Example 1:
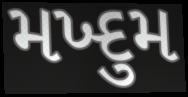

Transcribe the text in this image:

મખ્દુમ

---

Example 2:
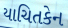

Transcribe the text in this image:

યાચિતકેન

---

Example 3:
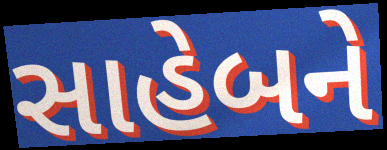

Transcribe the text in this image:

સાહેબને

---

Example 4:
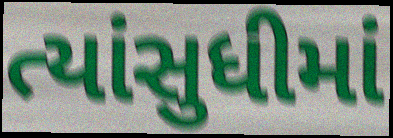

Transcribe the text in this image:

ત્યાંસુધીમાં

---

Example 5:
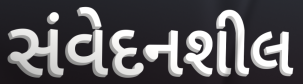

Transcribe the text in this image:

સંવેદનશીલ